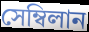
সেম্বিলান